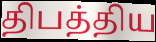
திபத்திய